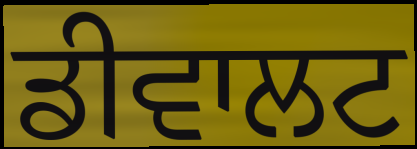
ਡੀਵਾਲਟ